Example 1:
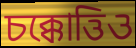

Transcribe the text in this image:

চক্কোত্তিও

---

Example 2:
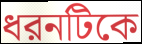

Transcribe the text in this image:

ধরনটিকে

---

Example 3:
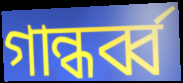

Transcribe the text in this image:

গান্ধর্ব্ব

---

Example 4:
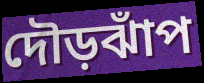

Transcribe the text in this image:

দৌড়ঝাঁপ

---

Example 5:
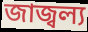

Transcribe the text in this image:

জাজ্বল্য